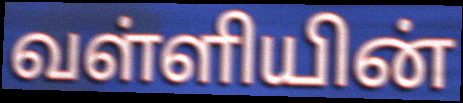
வள்ளியின்